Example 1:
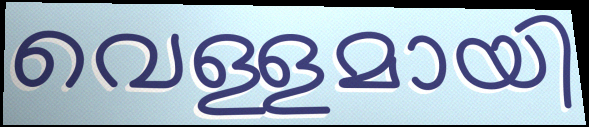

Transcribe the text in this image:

വെള്ളമായി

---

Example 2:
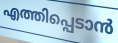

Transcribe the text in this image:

എത്തിപ്പെടാൻ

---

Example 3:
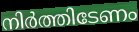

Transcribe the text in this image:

നിർത്തിടേണം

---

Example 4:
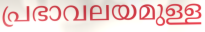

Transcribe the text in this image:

പ്രഭാവലയമുള്ള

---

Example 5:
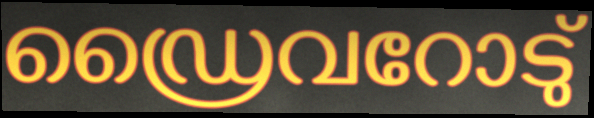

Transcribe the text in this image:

ഡ്രൈവറോടു്